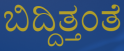
ಬಿದ್ದಿತ್ತಂತೆ